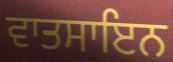
ਵਾਤਸਾਇਨ